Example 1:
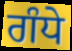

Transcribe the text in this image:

ਗੰਧੇ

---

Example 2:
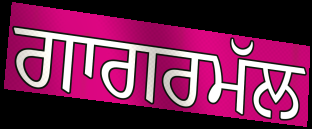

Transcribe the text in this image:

ਗਾਗਰਮੱਲ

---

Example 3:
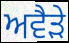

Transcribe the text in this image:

ਅਵੈੜੇ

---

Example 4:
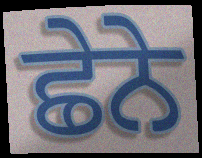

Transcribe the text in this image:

ਛੇਨੇ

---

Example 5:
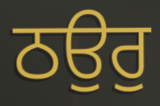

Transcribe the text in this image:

ਠਉਰੁ